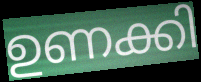
ഉണക്കി